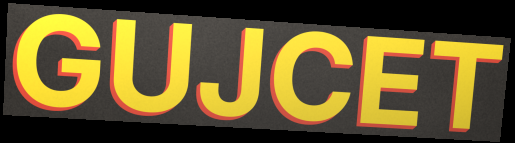
GUJCET